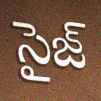
సైజ్